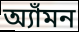
অ্যাঁমন